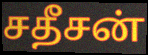
சதீசன்